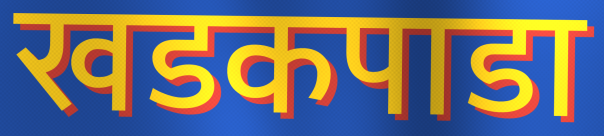
खडकपाडा